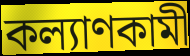
কল্যাণকামী